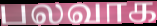
பலவாக